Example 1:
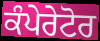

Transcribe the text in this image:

ਕੰਪੇਰੇਟੋਰ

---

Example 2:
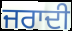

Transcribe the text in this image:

ਜਰਾਦੀ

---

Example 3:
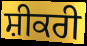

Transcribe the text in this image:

ਸ਼ੀਕਰੀ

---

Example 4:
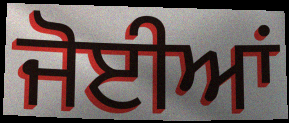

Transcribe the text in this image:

ਜੋਈਆਂ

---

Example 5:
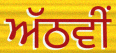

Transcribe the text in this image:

ਅੱਠਵੀਂ